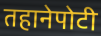
तहानेपोटी